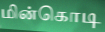
மின்கொடி